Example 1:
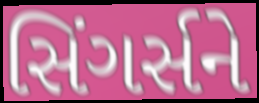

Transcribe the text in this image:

સિંગર્સને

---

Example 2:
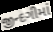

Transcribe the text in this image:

જીન્દગીમાં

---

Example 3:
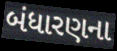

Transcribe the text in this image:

બંધારણના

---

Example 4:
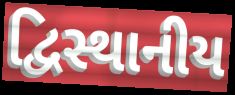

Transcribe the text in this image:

દ્વિસ્થાનીય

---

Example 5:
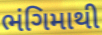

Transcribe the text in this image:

ભંગિમાથી